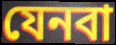
যেনবা